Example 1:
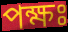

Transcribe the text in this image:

পক্ষঃ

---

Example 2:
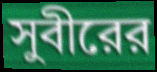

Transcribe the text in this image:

সুবীরের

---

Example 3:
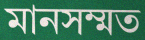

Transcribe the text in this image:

মানসম্মত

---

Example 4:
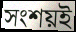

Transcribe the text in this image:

সংশয়ই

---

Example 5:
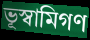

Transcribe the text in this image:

ভূস্বামিগণ